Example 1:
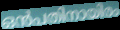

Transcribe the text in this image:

ഒൻപതിനായിരം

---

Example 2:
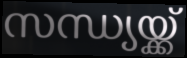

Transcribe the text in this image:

സന്ധ്യയ്ക്ക്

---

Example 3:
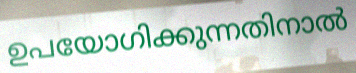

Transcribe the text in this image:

ഉപയോഗിക്കുന്നതിനാൽ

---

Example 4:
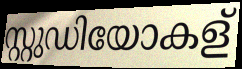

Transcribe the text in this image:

സ്റ്റുഡിയോകള്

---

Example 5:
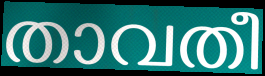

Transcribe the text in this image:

താവതീ